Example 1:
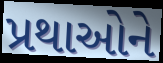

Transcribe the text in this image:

પ્રથાઓને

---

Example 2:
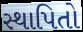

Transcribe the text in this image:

સ્થાપિતો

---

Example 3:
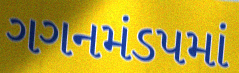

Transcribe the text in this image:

ગગનમંડપમાં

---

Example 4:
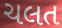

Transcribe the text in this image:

ચલત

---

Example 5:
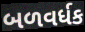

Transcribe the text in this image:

બળવર્ધક